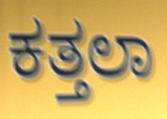
ಕತ್ತಲಾ